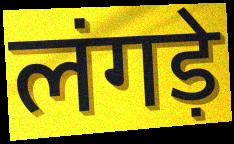
लंगड़े